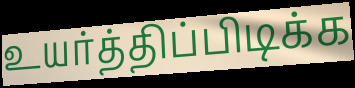
உயர்த்திப்பிடிக்க